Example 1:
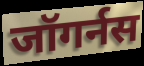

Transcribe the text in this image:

जॉगर्नस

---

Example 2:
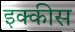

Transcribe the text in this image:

इक्कीस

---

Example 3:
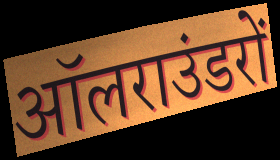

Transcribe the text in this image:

ऑलराउंडरों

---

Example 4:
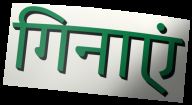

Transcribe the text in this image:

गिनाएं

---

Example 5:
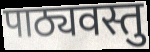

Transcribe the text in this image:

पाठ्यवस्तु